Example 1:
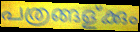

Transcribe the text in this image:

പത്രങ്ങള്ക്കും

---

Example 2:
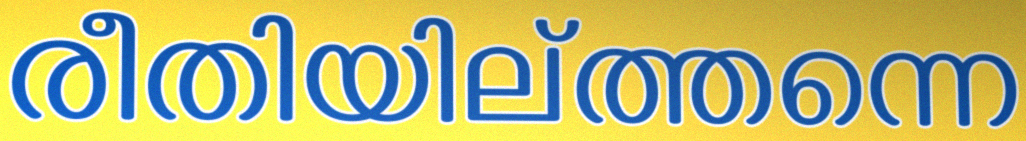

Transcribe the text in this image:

രീതിയില്ത്തന്നെ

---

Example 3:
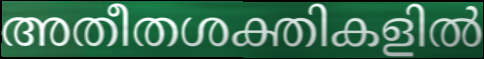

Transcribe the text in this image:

അതീതശക്തികളിൽ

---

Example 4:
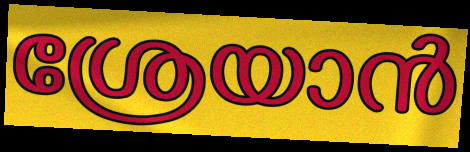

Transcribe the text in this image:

ശ്രേയാൻ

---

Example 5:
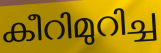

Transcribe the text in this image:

കീറിമുറിച്ച